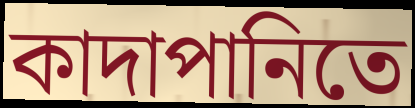
কাদাপানিতে